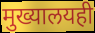
मुख्यालयही